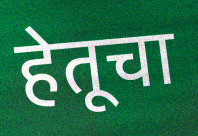
हेतूचा